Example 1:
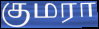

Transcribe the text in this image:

குமரா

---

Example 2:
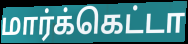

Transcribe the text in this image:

மார்க்கெட்டா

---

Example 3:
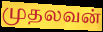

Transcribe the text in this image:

முதலவன்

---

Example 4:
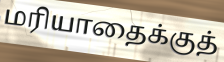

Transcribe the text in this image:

மரியாதைக்குத்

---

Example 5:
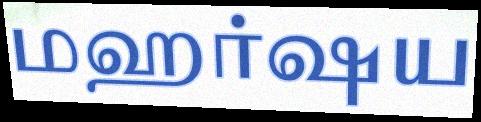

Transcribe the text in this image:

மஹர்ஷய